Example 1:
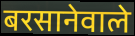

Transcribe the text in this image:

बरसानेवाले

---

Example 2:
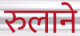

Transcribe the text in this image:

रुलाने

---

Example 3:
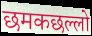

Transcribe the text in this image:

छमकछल्लो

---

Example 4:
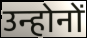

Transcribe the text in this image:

उन्होनों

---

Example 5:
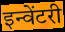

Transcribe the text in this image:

इन्वेंटरी